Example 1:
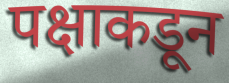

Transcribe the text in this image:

पक्षाकडून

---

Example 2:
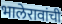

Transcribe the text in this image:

भालेरावांची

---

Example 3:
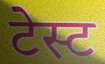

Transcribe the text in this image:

टेस्ट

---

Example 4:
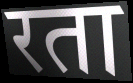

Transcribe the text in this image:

रता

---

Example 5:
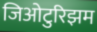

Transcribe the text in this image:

जिओटुरिझम